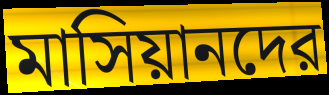
মাসিয়ানদের